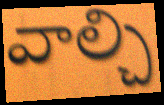
వాల్చి